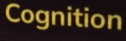
Cognition